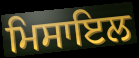
ਮਿਸਾਇਲ